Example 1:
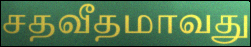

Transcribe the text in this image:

சதவீதமாவது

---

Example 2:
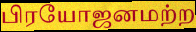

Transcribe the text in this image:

பிரயோஜனமற்ற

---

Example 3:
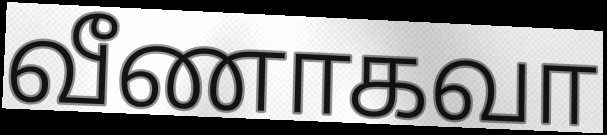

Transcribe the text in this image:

வீணாகவா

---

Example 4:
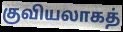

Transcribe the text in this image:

குவியலாகத்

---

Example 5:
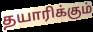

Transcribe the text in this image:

தயாரிக்கும்